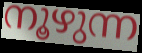
നൂഴുന്ന